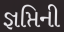
જ્ઞપ્તિની